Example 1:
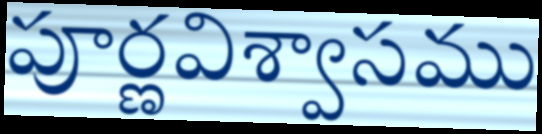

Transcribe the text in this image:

పూర్ణవిశ్వాసము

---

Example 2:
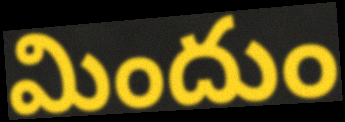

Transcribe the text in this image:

మిందుం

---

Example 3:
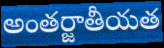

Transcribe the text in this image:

అంతర్జాతీయత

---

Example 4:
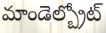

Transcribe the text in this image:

మాండెల్బ్రోట్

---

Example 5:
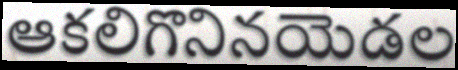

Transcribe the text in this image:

ఆకలిగొనినయెడల